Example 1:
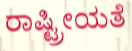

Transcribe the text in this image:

ರಾಷ್ಟ್ರೀಯತೆ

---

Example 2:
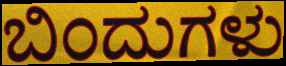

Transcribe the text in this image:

ಬಿಂದುಗಳು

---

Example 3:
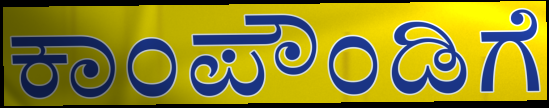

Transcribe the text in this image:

ಕಾಂಪೌಂಡಿಗೆ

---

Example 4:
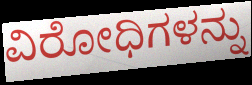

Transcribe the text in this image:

ವಿರೋಧಿಗಳನ್ನು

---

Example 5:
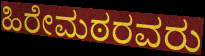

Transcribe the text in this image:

ಹಿರೇಮಠರವರು